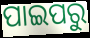
ପାଇପରୁ